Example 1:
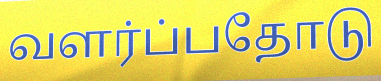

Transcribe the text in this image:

வளர்ப்பதோடு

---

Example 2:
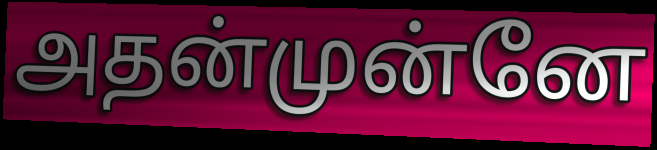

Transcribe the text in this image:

அதன்முன்னே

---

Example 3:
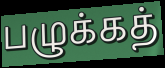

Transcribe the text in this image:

பழுக்கத்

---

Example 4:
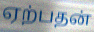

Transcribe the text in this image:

ஏற்பதன்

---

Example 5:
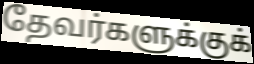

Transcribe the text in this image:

தேவர்களுக்குக்